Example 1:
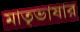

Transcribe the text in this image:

মাতৃভাষার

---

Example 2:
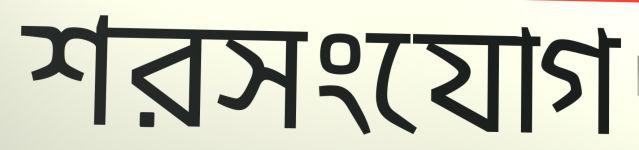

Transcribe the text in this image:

শরসংযোগ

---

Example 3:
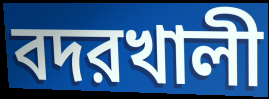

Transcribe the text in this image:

বদরখালী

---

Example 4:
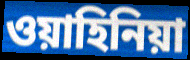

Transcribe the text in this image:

ওয়াহিনিয়া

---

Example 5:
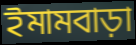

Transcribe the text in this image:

ইমামবাড়া